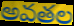
అవతల